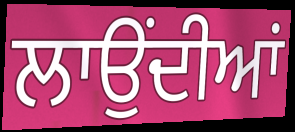
ਲਾਉਂਦੀਆਂ